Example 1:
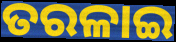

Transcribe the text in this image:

ତରଳାଇ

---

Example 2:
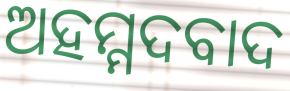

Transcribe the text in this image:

ଅହମ୍ମଦବାଦ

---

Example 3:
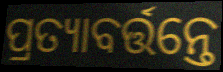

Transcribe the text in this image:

ପ୍ରତ୍ୟାବର୍ତ୍ତନ୍ତେ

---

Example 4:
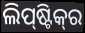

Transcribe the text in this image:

ଲିପ୍‌ଷ୍ଟିକ୍‌ର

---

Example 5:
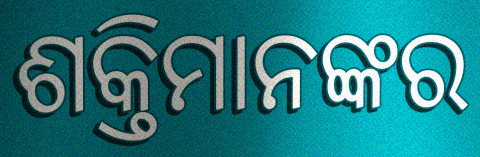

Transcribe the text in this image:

ଶକ୍ତିମାନଙ୍କର